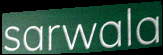
sarwala